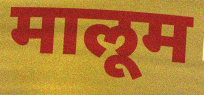
मालूम